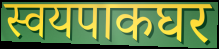
स्वयपाकघर